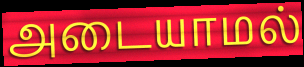
அடையாமல்